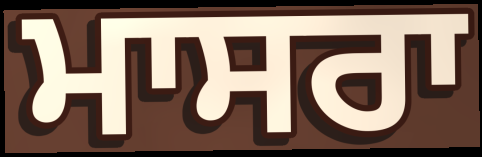
ਮਾਸਰਾ